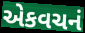
એકવચનં